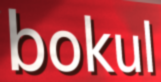
bokul